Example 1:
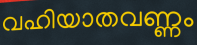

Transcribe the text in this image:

വഹിയാതവണ്ണം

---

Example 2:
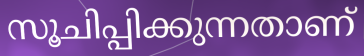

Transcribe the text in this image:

സൂചിപ്പിക്കുന്നതാണ്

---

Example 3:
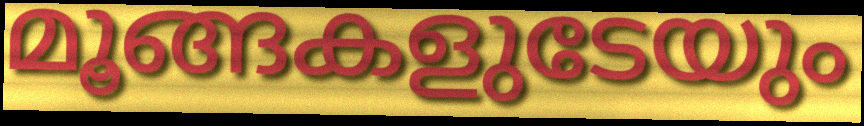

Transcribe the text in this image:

മൂങ്ങകളുടേയും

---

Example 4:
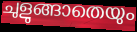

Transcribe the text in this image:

ചുളുങ്ങാതെയും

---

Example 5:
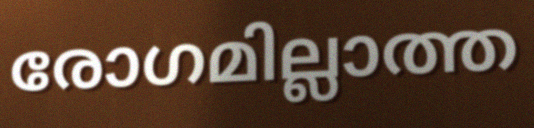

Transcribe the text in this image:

രോഗമില്ലാത്ത